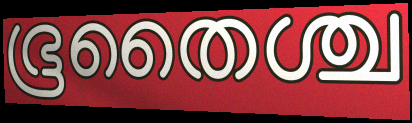
ഭൂതൈശ്ച